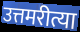
उत्तमरीत्या